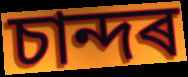
চান্দৰ